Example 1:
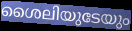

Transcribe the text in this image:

ശൈലിയുടേയും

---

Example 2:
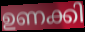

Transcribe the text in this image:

ഉണക്കി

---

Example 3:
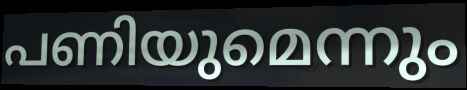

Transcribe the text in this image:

പണിയുമെന്നും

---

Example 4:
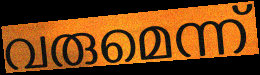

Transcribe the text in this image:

വരുമെന്ന്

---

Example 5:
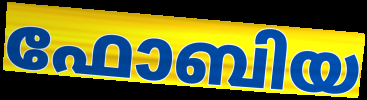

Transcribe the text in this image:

ഫോബിയ